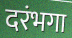
दरंभगा